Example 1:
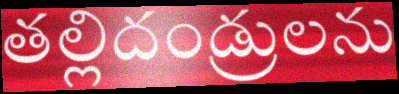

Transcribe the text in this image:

తల్లిదండ్రులను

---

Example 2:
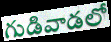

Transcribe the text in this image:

గుడివాడలో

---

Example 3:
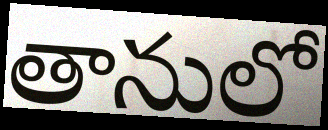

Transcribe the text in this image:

తానులో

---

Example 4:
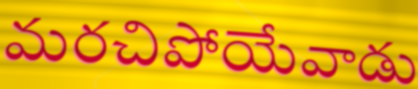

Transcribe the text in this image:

మరచిపోయేవాడు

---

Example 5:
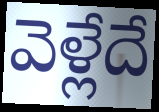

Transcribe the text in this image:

వెళ్లేదే